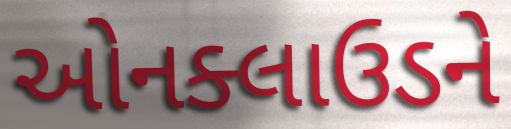
ઓનક્લાઉડને